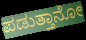
ಪಡುತ್ತಾನೋ